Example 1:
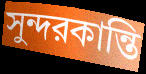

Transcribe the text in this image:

সুন্দরকান্তি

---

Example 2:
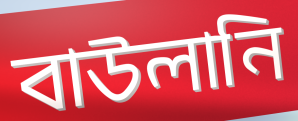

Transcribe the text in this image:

বাউলানি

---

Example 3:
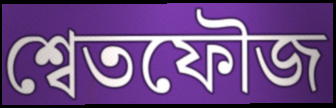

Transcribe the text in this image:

শ্বেতফৌজ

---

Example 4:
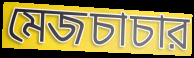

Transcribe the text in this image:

মেজচাচার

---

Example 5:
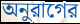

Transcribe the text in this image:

অনুরাগের